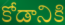
కోడానికి